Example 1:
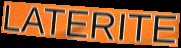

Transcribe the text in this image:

LATERITE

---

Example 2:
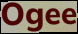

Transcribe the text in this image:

Ogee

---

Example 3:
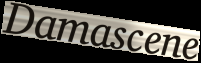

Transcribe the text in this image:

Damascene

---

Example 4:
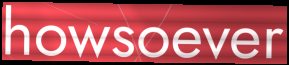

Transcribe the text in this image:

howsoever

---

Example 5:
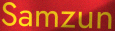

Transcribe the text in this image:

Samzun